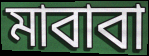
মাবাবা